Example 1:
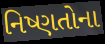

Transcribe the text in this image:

નિષ્ણતોના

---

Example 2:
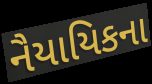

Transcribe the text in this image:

નૈયાયિકના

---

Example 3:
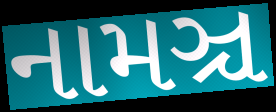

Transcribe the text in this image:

નામઞ્ચ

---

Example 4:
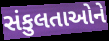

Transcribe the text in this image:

સંકુલતાઓને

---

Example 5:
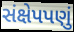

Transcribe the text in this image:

સંક્ષેપપણું